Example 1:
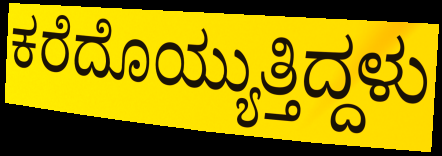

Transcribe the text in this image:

ಕರೆದೊಯ್ಯುತ್ತಿದ್ದಳು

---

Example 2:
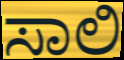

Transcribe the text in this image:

ಸಾಲಿ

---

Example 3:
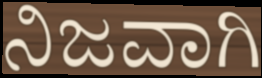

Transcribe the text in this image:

ನಿಜವಾಗಿ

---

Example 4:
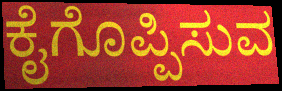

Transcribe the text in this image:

ಕೈಗೊಪ್ಪಿಸುವ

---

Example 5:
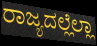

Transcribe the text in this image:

ರಾಜ್ಯದಲ್ಲೆಲ್ಲಾ